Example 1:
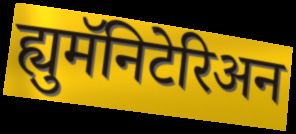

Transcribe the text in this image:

ह्युमॅनिटेरिअन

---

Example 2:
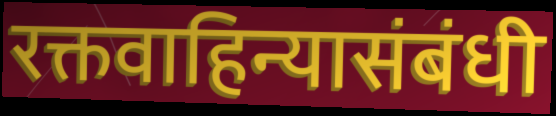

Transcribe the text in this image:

रक्तवाहिन्यासंबंधी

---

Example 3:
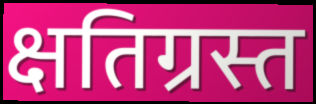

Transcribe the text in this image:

क्षतिग्रस्त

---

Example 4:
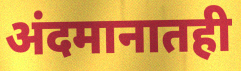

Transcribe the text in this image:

अंदमानातही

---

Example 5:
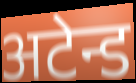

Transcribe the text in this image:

अटेन्ड